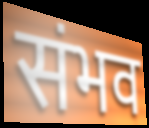
संभव